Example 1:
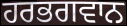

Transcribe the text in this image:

ਹਰਭਗਵਾਨ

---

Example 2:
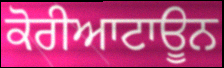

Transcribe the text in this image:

ਕੋਰੀਆਟਾਊਨ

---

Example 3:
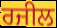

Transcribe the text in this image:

ਰਜੀਲ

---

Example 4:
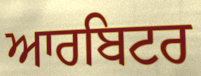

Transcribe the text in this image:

ਆਰਬਿਟਰ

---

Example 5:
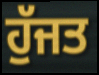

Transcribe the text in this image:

ਹੁੱਜਤ